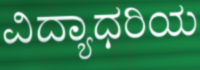
ವಿದ್ಯಾಧರಿಯ